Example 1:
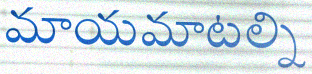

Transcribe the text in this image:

మాయమాటల్ని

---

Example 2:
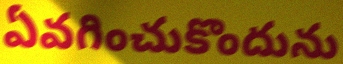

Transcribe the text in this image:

ఏవగించుకొందును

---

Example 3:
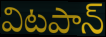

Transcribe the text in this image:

విటపాన్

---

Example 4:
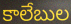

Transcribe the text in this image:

కాలేబుల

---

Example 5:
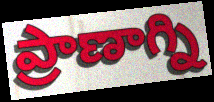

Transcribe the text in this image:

ప్రాణాగ్ని